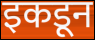
इकडून